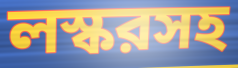
লস্করসহ